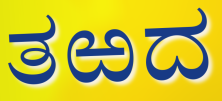
ತಱದ